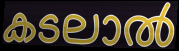
കടലാൽ